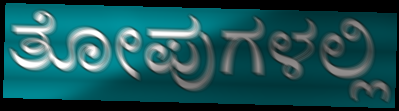
ತೋಪುಗಳಲ್ಲಿ